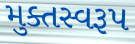
મુક્તસ્વરૂપ